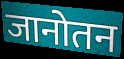
जानोतन